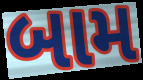
બામ